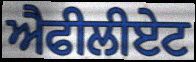
ਐਫੀਲੀਏਟ